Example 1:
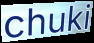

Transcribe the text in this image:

chuki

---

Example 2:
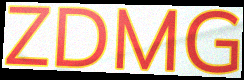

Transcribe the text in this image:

ZDMG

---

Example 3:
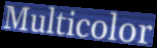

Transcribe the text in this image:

Multicolor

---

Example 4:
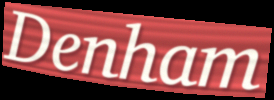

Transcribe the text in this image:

Denham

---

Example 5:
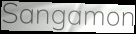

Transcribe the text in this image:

Sangamon